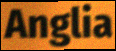
Anglia